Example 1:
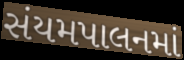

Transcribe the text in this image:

સંયમપાલનમાં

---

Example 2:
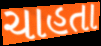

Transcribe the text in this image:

ચાહતા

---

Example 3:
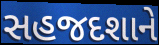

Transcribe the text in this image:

સહજદશાને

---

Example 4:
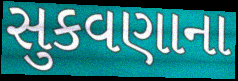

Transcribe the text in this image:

સુકવણાના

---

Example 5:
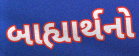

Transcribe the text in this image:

બાહ્યાર્થનો